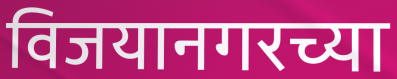
विजयानगरच्या